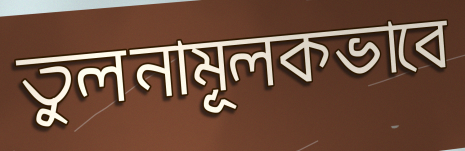
তুলনামূলকভাবে